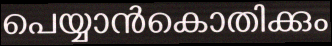
പെയ്യാൻകൊതിക്കും